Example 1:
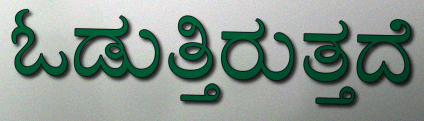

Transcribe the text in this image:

ಓಡುತ್ತಿರುತ್ತದೆ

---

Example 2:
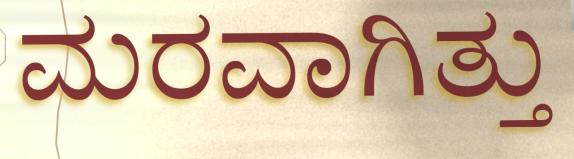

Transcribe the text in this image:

ಮರವಾಗಿತ್ತು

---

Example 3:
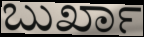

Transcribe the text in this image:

ಬುರ್ಖಾ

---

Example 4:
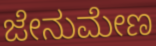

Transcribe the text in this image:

ಜೇನುಮೇಣ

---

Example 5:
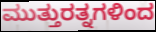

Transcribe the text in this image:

ಮುತ್ತುರತ್ನಗಳಿಂದ